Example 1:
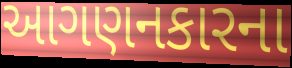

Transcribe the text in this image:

આગણનકારના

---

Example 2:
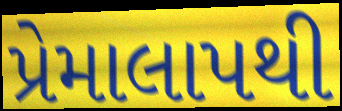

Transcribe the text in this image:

પ્રેમાલાપથી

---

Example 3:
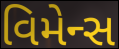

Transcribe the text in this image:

વિમેન્સ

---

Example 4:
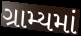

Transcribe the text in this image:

ગ્રામ્યમાં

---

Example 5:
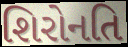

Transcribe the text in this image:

શિરોનતિ